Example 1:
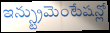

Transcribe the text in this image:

ఇన్స్ట్రుమెంటేషన్లో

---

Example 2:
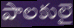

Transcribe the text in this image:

పాలకులై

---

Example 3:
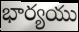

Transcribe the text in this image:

భార్యయు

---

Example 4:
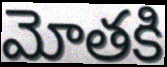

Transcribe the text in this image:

మోతకి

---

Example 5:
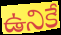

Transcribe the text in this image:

ఉనికే